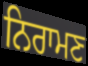
ਨਿਰਾਮਣ